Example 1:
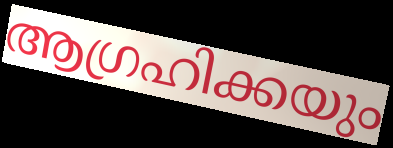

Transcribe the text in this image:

ആഗ്രഹിക്കയും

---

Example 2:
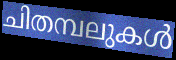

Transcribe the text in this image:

ചിതമ്പലുകൾ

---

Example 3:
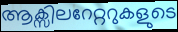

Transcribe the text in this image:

ആക്സിലറേറ്ററുകളുടെ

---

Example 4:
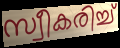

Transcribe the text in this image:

സ്വീകരിച്ച്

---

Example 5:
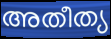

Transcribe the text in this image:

അതീത്യ